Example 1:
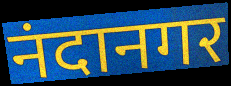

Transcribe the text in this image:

नंदानगर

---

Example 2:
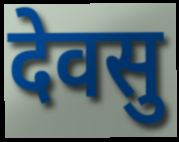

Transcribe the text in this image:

देवसु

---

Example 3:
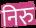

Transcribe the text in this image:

निरु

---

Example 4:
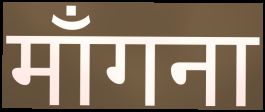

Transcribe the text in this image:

माँगना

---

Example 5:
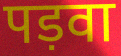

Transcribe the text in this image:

पड़वा